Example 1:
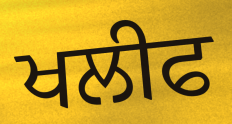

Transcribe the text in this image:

ਖਲੀਫ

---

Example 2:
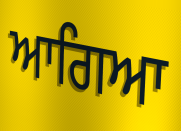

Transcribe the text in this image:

ਆਗਿਆ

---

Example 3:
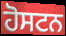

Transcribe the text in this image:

ਹੋਸਟਨ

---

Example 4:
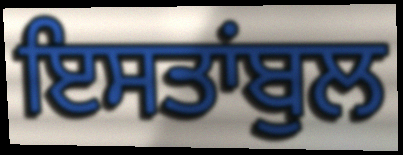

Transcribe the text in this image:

ਇਸਤਾਂਬੁਲ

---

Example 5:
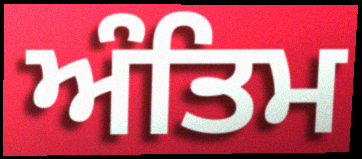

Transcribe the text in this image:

ਅੰਤਿਮ